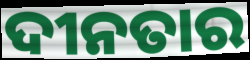
ଦୀନତାର